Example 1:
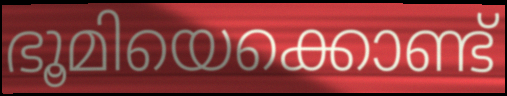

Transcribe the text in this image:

ഭൂമിയെക്കൊണ്ട്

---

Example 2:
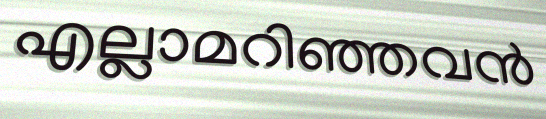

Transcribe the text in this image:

എല്ലാമറിഞ്ഞവൻ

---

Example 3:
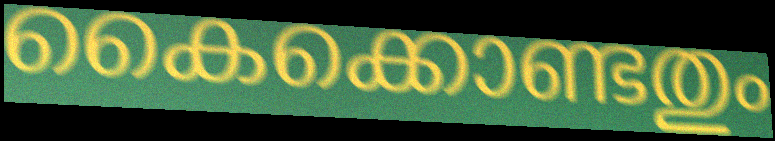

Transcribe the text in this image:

കൈക്കൊണ്ടതും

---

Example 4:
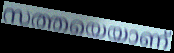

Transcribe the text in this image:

സത്തയെയാണ്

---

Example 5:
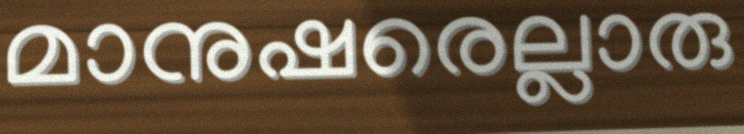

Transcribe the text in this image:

മാനുഷരെല്ലാരു